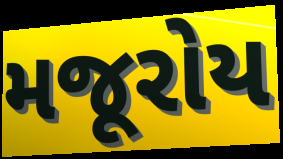
મજૂરોય